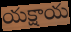
యక్షాయ